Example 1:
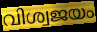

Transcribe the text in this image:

വിശ്വജയം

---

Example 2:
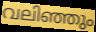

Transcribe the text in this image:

വലിഞ്ഞും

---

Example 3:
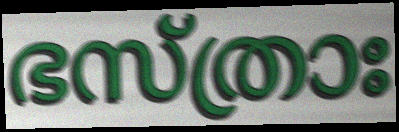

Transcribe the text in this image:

ഭസ്ത്രാഃ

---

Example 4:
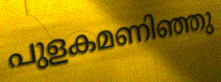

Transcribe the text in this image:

പുളകമണിഞ്ഞു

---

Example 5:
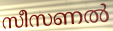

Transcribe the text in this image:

സീസണൽ